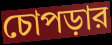
চোপড়ার